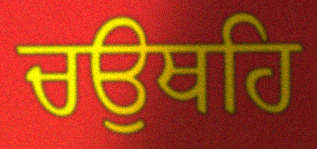
ਚਉਥਹਿ